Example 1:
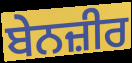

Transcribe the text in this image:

ਬੇਨਜ਼ੀਰ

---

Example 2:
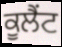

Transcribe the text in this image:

ਕੂਲੈਂਟ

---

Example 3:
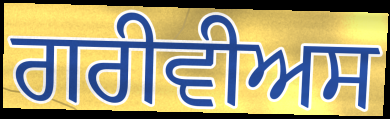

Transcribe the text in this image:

ਗਰੀਵੀਅਸ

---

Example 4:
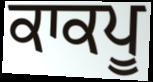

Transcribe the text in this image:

ਕਾਕਪੂ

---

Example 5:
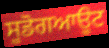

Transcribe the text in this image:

ਸੂਡੋਗਆਊਟ